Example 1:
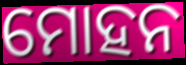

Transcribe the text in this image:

ମୋହନ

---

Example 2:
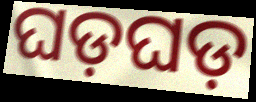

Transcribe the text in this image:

ଘଡ଼ଘଡ଼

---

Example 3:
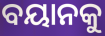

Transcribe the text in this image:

ବୟାନକୁ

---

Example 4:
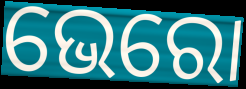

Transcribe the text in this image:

ଭେରୋ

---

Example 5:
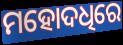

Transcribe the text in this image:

ମହୋଦଧିରେ